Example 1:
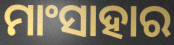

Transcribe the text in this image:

ମାଂସାହାର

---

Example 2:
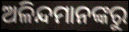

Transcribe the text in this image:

ଅଳିନ୍ଦମାନଙ୍କରୁ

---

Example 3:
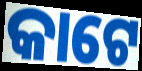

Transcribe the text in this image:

କାଟେ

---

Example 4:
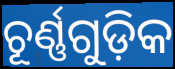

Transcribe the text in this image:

ଚୂର୍ଣ୍ଣଗୁଡ଼ିକ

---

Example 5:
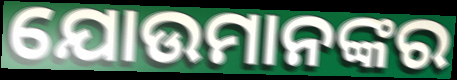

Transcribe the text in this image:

ଯୋଉମାନଙ୍କର